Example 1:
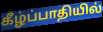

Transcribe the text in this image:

கீழ்ப்பாதியில்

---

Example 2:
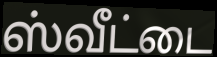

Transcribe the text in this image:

ஸ்வீட்டை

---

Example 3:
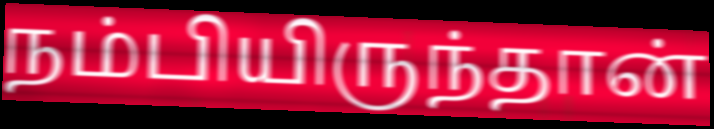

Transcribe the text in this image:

நம்பியிருந்தான்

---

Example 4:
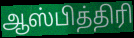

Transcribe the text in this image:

ஆஸ்பித்திரி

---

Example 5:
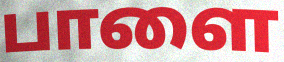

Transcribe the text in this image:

பாளை